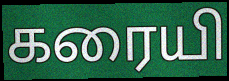
கரையி